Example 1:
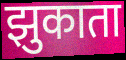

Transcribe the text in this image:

झुकाता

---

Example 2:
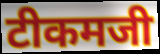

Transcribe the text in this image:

टीकमजी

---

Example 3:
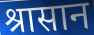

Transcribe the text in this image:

श्रासान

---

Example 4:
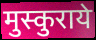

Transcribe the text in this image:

मुस्कुराये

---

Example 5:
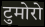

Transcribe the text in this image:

टुमोरो